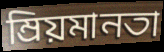
ম্রিয়মানতা